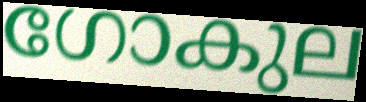
ഗോകുല